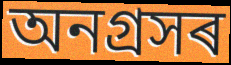
অনগ্ৰসৰ